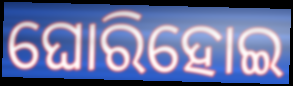
ଘୋରିହୋଇ